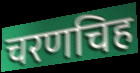
चरणचिह